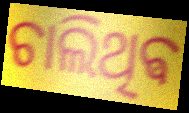
ଚାଲିଥିଵ